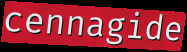
cennagide